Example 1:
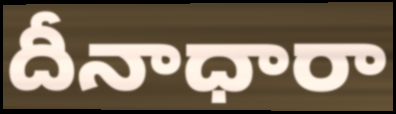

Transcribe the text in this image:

దీనాధారా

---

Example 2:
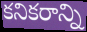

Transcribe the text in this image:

కనికరాన్ని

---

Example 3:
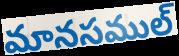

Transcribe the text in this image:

మానసముల్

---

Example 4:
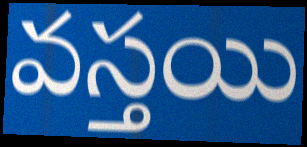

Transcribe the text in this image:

వస్తయి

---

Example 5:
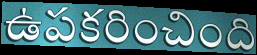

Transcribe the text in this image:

ఉపకరించింది